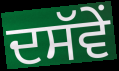
ਦਸੱਵੇਂ